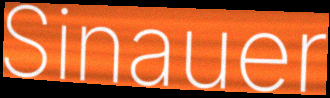
Sinauer